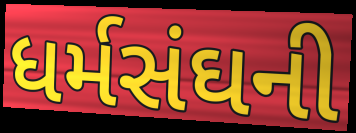
ધર્મસંઘની